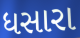
ધસારા